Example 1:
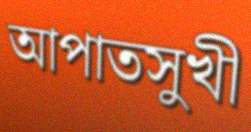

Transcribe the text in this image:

আপাতসুখী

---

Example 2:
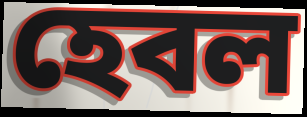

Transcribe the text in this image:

হেবল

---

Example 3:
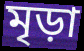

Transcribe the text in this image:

মৃড়া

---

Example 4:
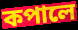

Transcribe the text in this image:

কপালে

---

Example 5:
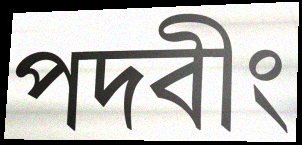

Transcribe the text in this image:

পদবীং